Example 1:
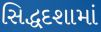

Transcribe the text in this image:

સિદ્ધદશામાં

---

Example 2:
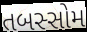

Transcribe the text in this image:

તબસ્સોમ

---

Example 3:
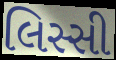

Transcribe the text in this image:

લિસ્સી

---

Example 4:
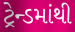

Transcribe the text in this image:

ટ્રેન્ડમાંથી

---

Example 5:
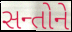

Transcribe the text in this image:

સન્તોને